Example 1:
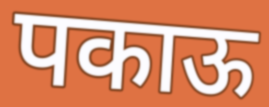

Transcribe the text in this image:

पकाऊ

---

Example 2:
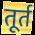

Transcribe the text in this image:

तूर्त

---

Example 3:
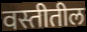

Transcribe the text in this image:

वस्तीतील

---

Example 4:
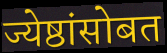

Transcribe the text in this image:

ज्येष्ठांसोबत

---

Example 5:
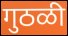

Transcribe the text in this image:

गुठळी